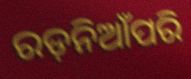
ରଡ଼ନିଆଁପରି